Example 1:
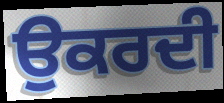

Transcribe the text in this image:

ਉਕਰਦੀ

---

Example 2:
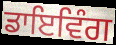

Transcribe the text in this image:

ਡਾਇਵਿੰਗ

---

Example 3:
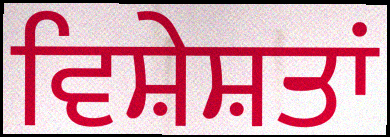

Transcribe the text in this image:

ਵਿਸ਼ੇਸ਼ਤਾਂ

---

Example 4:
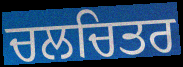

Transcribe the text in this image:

ਚਲਚਿਤਰ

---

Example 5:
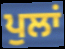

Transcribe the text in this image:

ਪੁਲਾਂ